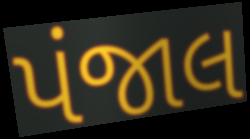
પંજાલ